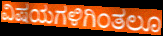
ವಿಷಯಗಳಿಗಿಂತಲೂ